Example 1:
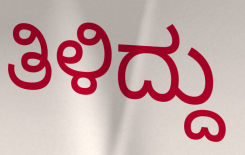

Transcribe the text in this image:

ತಿಳಿದ್ದು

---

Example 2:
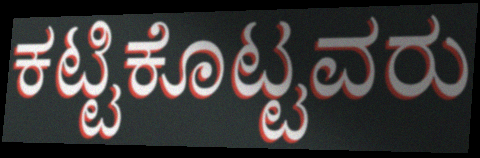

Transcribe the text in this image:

ಕಟ್ಟಿಕೊಟ್ಟವರು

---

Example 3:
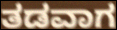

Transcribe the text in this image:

ತಡವಾಗ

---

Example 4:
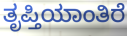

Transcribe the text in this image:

ತೃಪ್ತಿಯಾಂತಿರೆ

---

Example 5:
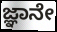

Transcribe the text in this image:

ಜ್ಞಾನೇ